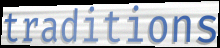
traditions